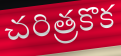
చరిత్రకొక